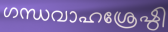
ഗന്ധവാഹശ്രേഷ്ഠി